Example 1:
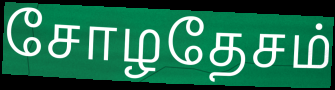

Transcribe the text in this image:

சோழதேசம்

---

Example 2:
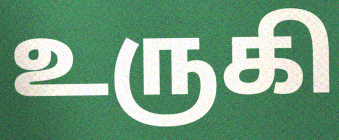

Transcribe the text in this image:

உருகி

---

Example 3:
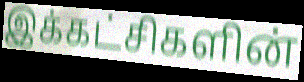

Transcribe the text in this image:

இக்கட்சிகளின்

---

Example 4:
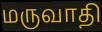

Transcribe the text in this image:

மருவாதி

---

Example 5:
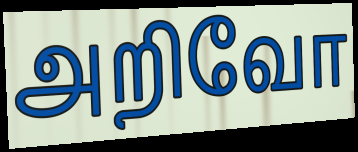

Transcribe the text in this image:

அறிவோ